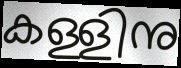
കള്ളിനു